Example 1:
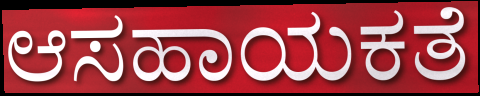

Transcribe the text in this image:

ಆಸಹಾಯಕತೆ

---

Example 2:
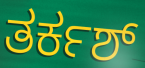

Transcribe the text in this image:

ತರ್ಕಶ್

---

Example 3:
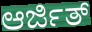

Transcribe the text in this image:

ಆರ್ಜಿತ್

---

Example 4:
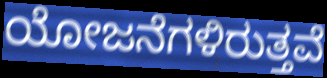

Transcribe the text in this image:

ಯೋಜನೆಗಳಿರುತ್ತವೆ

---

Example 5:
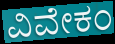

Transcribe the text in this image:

ವಿವೇಕಂ